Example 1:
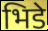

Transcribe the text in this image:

भिडे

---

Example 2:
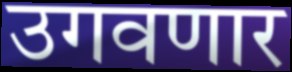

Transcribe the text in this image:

उगवणार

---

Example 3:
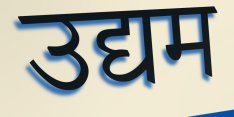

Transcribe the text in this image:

उद्यम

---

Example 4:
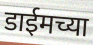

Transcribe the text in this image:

डाईमच्या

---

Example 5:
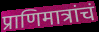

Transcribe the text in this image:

प्राणिमात्रांचं